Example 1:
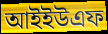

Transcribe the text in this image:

আইইউএফ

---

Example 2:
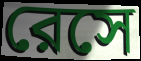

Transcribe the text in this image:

রেসে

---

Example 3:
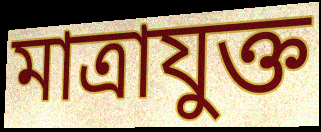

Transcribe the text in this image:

মাত্রাযুক্ত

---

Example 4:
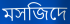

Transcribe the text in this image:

মসজিদে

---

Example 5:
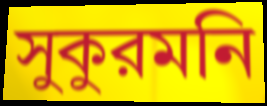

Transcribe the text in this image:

সুকুরমনি